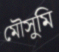
মৌসুমি